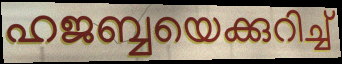
ഹജബ്ബയെക്കുറിച്ച്